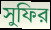
সুফির